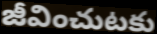
జీవించుటకు